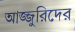
আজ্জুরিদের